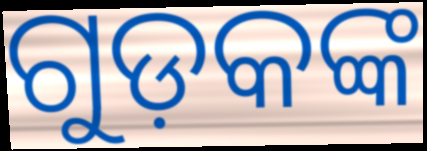
ଗୁଡ଼କଙ୍କ